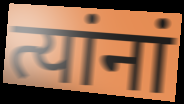
त्यांनां